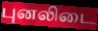
புனலிடை